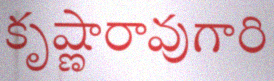
కృష్ణారావుగారి